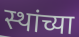
स्थांच्या